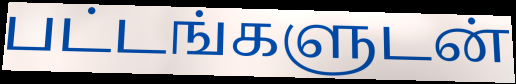
பட்டங்களுடன்